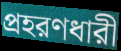
প্রহরণধারী